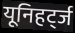
यूनिहर्ट्ज